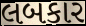
લબકાર